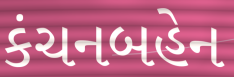
કંચનબહેન